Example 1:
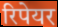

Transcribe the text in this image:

रिपेयर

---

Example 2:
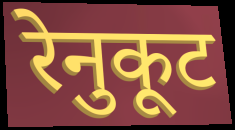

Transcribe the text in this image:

रेनुकूट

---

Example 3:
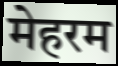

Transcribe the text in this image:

मेहरम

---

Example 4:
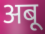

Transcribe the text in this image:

अबू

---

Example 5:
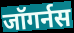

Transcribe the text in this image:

जॉगर्नस